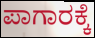
ಪಾಗಾರಕ್ಕೆ